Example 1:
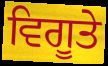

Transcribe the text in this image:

ਵਿਗੂਤੇ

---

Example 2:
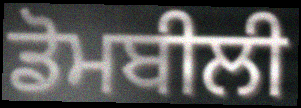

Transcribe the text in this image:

ਡੋਮਬੀਲੀ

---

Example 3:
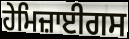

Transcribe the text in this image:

ਹੇਮਿਜ਼ਾਈਗਸ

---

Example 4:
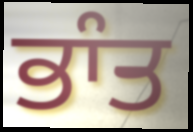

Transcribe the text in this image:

ਭਾੰਤ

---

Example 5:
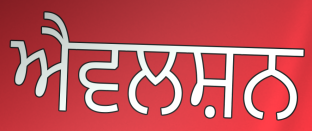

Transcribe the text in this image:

ਐਵਲਸ਼ਨ